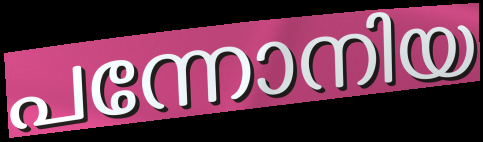
പന്നോനിയ